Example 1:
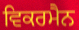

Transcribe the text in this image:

ਵਿਕਰਮੈਨ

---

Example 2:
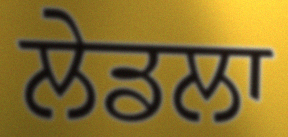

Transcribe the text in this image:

ਲੇਡਲਾ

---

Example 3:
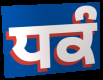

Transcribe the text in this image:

ਧਕੰ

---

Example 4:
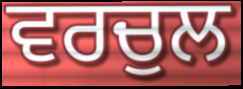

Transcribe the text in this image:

ਵਰਚੁਲ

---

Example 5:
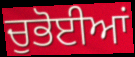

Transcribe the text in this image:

ਚੁਭੋਈਆਂ